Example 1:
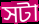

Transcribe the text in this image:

সটা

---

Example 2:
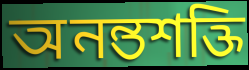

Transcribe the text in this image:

অনন্তশক্তি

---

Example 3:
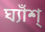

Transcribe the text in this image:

ঘ্যাঁশ্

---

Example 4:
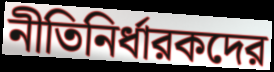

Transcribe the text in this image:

নীতিনির্ধারকদের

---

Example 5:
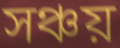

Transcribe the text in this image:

সঞ্চয়